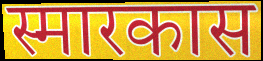
स्मारकास